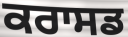
ਕਰਾਸਡ